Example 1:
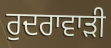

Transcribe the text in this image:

ਰੁਦਰਾਵਾੜੀ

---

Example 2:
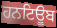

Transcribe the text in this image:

ਹਨਟਿਊਬ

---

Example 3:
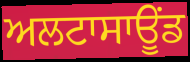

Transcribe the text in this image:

ਅਲਟਾਸਾਊਂਡ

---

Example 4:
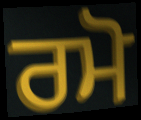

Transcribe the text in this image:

ਰਮੋ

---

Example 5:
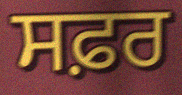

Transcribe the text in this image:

ਸਫ਼ਰ